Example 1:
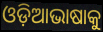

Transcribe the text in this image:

ଓଡ଼ିଆଭାଷାକୁ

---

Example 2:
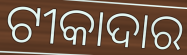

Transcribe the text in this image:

ଟୀକାଦାର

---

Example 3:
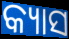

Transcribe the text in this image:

କ୍ୟାସ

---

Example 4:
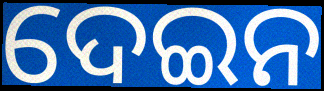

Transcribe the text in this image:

ଦେଇନ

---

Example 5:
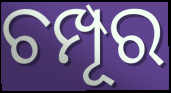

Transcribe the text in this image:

ଚମ୍ପୂର